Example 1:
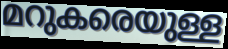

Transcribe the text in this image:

മറുകരെയുള്ള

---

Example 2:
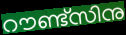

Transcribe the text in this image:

റൗണ്ട്സിനു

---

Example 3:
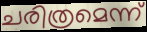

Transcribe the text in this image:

ചരിത്രമെന്ന്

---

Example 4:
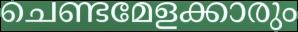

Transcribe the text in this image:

ചെണ്ടമേളക്കാരും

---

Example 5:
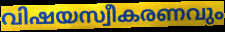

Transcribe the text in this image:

വിഷയസ്വീകരണവും